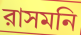
রাসমনি